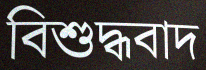
বিশুদ্ধবাদ